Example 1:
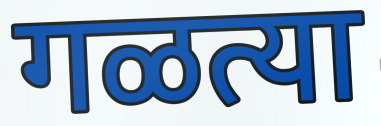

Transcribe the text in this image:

गळत्या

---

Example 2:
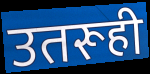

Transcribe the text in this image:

उतरूही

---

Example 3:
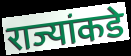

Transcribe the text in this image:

राज्यांकडे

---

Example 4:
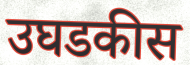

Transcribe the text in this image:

उघडकीस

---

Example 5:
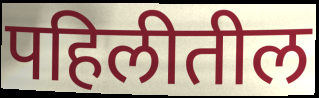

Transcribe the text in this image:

पहिलीतील